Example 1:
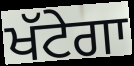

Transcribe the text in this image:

ਖੱਟੇਗਾ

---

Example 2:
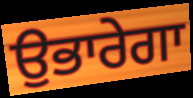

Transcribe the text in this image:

ਉਭਾਰੇਗਾ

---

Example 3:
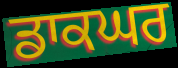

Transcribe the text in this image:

ਡਾਕਘਰ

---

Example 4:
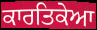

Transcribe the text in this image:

ਕਾਰਤਿਕੇਆ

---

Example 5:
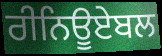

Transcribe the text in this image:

ਰੀਨਿਊਏਬਲ